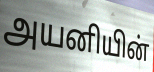
அயனியின்